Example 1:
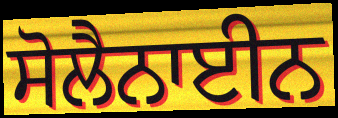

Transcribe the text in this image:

ਸੋਲੈਨਾਈਨ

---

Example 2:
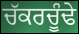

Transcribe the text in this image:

ਚੱਕਰਚੂੰਢੇ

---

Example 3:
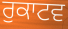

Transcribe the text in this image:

ਰੁਕਾਟਵ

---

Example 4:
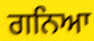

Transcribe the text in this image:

ਗਨਿਆ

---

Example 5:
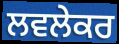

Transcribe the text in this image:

ਲਵਲੇਕਰ